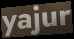
yajur